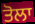
ਤੋਲਾ